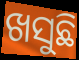
ଖସୁଛି